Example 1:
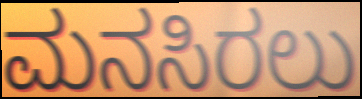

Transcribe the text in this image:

ಮನಸಿರಲು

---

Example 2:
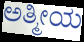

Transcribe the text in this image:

ಅತ್ಮೀಯ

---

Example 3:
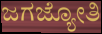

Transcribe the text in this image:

ಜಗಜ್ಯೋತಿ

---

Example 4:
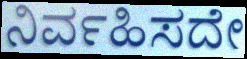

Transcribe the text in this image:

ನಿರ್ವಹಿಸದೇ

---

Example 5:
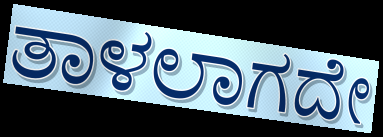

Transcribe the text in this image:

ತಾಳಲಾಗದೇ